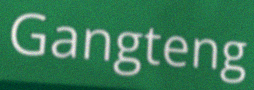
Gangteng